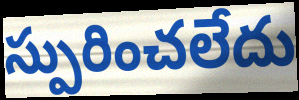
స్పురించలేదు